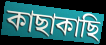
কাছাকাছি